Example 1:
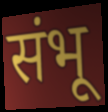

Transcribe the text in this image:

संभू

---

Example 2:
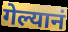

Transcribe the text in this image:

गेल्यानं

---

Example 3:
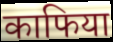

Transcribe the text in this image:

काफिया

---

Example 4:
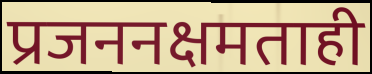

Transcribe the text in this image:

प्रजननक्षमताही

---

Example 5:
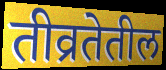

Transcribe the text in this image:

तीव्रतेतील